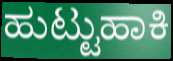
ಹುಟ್ಟುಹಾಕಿ